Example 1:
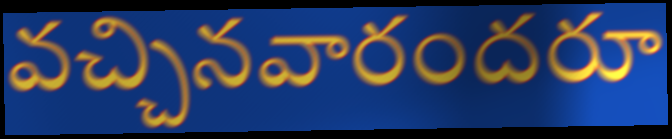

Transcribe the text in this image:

వచ్చినవారందరూ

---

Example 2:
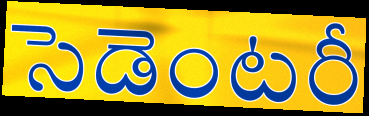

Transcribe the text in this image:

సెడెంటరీ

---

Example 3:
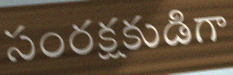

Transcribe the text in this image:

సంరక్షకుడిగా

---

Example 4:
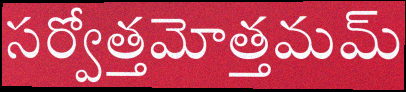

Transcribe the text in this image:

సర్వోత్తమోత్తమమ్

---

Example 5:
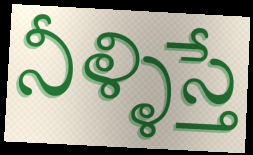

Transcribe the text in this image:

నీళ్ళిస్తే